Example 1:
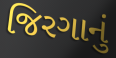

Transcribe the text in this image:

જિરગાનું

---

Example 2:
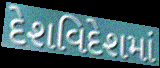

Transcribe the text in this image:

દેશવિદેશમાં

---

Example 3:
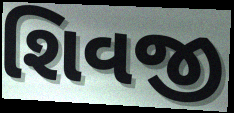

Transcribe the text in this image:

શિવજી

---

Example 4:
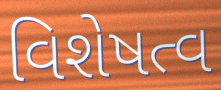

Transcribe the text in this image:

વિશેષત્વ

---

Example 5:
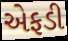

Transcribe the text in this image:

એફડી